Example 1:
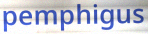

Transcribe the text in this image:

pemphigus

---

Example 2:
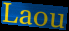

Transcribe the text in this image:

Laou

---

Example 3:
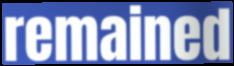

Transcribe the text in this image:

remained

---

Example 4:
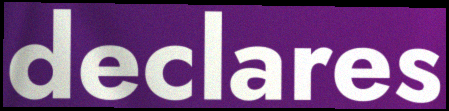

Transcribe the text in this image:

declares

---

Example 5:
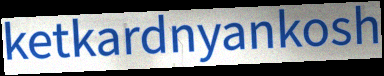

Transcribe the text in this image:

ketkardnyankosh